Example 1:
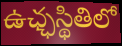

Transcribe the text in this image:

ఉఛ్ఛస్థితిలో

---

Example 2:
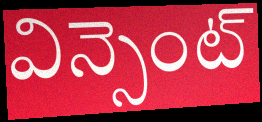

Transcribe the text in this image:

విన్సెంట్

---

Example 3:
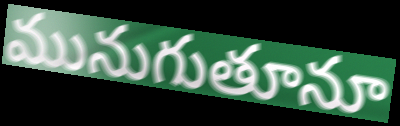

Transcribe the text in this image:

మునుగుతూనూ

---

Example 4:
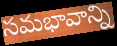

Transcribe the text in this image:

సమభావాన్ని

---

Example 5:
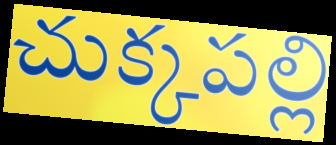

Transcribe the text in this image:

చుక్కపల్లి